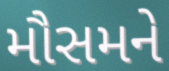
મૌસમને